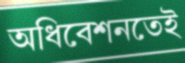
অধিবেশনতেই